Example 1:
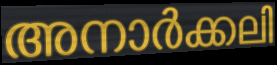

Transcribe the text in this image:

അനാർക്കലി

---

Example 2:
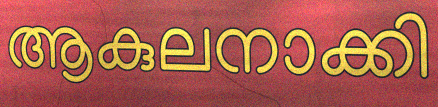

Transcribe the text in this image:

ആകുലനാക്കി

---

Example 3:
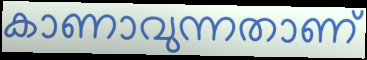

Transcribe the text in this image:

കാണാവുന്നതാണ്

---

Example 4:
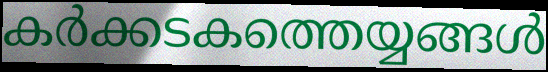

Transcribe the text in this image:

കർക്കടകത്തെയ്യങ്ങൾ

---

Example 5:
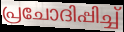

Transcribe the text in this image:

പ്രചോദിപ്പിച്ച്